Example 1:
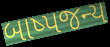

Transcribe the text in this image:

બાષ્પજન્ય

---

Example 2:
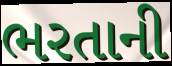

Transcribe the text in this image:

ભરતાની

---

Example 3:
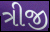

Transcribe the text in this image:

ત્રીજી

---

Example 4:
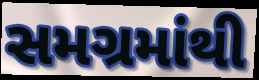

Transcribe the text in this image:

સમગ્રમાંથી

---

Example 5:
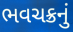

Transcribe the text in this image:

ભવચક્રનું